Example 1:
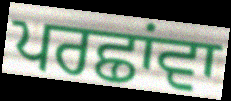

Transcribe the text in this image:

ਪਰਛਾਂਵਾ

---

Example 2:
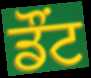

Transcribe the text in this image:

ਡੌਂਟ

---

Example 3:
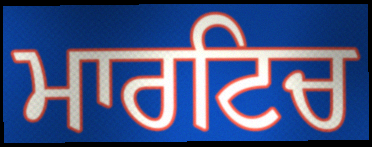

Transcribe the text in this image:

ਮਾਰਟਿਚ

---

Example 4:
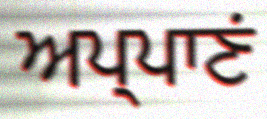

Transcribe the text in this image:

ਅਪ੍ਪਾਣਂ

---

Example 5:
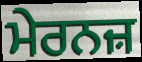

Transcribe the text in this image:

ਮੇਰਨਜ਼